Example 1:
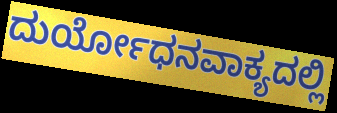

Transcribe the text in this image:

ದುರ್ಯೋಧನವಾಕ್ಯದಲ್ಲಿ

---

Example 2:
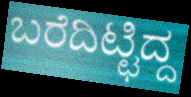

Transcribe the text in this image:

ಬರೆದಿಟ್ಟಿದ್ದ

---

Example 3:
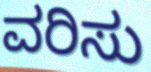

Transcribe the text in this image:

ವರಿಸು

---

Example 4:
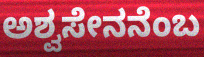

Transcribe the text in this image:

ಅಶ್ವಸೇನನೆಂಬ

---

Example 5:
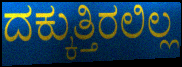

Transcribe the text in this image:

ದಕ್ಕುತ್ತಿರಲಿಲ್ಲ